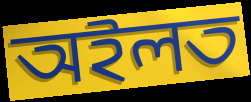
অইলত